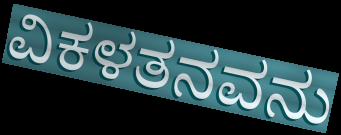
ವಿಕಳತನವನು